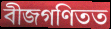
বীজগণিতত